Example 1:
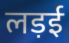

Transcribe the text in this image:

लड़ई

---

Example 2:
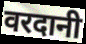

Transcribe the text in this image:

वरदानी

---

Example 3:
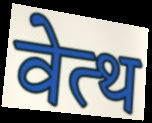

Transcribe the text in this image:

वेत्थ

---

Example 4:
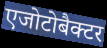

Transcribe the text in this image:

एजोटोबैक्टर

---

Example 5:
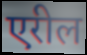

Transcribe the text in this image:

एरील